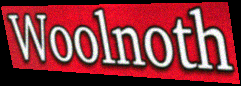
Woolnoth